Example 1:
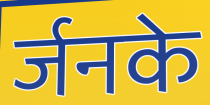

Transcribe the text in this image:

र्जनके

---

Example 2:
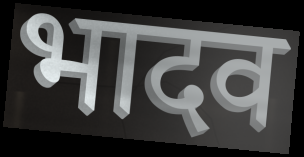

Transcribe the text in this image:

भादव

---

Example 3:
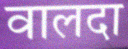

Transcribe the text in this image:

वालदा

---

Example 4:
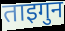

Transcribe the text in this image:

ताइगुन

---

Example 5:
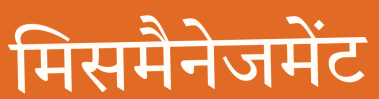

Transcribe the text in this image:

मिसमैनेजमेंट